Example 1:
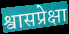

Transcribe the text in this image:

श्वासप्रेक्षा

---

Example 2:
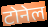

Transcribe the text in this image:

टोनेल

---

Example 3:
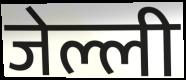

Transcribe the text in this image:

जेल्ली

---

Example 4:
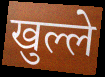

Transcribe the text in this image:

खुल्ले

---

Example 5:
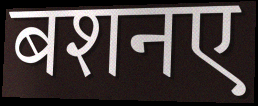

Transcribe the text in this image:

बशनए